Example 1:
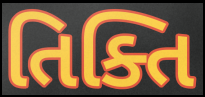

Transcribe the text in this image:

તિક્તિ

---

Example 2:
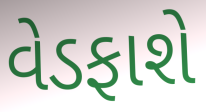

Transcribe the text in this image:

વેડફાશે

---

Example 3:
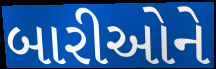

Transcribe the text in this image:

બારીઓને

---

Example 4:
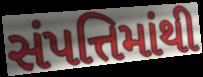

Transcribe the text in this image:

સંપત્તિમાંથી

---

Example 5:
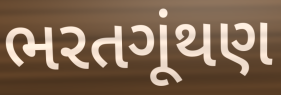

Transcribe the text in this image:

ભરતગૂંથણ